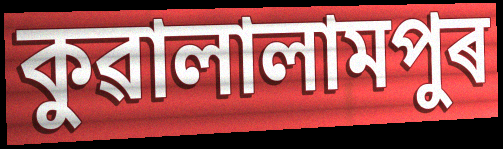
কুৱালালামপুৰ